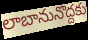
లాబానునొద్దకు